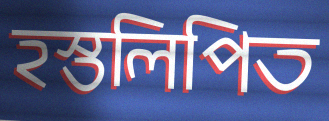
হস্তলিপিত